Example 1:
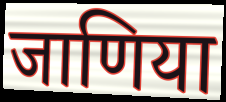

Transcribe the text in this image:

जाणिया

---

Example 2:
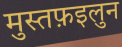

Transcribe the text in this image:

मुस्तफ़इलुन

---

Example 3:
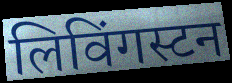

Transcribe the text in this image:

लिविंगस्टन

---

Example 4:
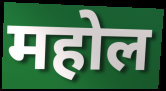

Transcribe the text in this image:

महोल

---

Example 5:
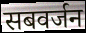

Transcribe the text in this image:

सबवर्जन